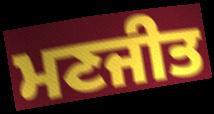
ਮਣਜੀਤ